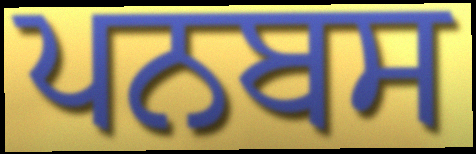
ਪਨਬਸ